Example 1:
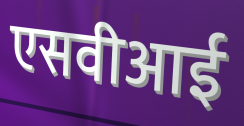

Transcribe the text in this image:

एसवीआई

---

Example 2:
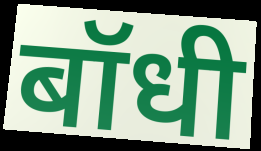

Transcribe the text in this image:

बॉधी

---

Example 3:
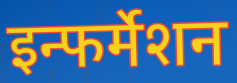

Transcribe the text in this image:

इन्फर्मेशन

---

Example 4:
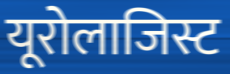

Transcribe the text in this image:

यूरोलाजिस्ट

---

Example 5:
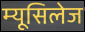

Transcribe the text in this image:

म्यूसिलेज